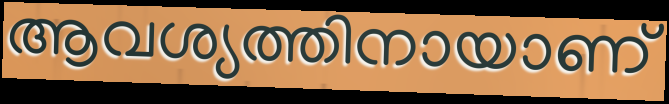
ആവശ്യത്തിനായാണ്